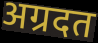
अग्रदत